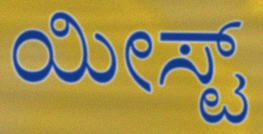
ಯೀಸ್ಟ್